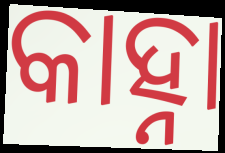
କାହ୍ନା